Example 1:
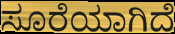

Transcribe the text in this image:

ಸೂರೆಯಾಗಿದೆ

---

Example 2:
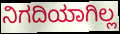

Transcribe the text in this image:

ನಿಗದಿಯಾಗಿಲ್ಲ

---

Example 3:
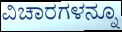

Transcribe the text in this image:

ವಿಚಾರಗಳನ್ನೂ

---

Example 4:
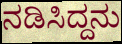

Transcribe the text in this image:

ನಡಿಸಿದ್ದನು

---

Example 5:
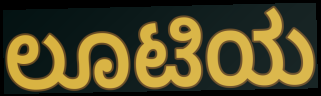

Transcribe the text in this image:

ಲೂಟಿಯ